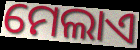
ମେଲାଏ